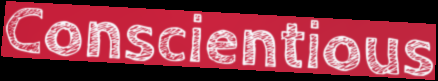
Conscientious